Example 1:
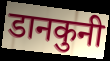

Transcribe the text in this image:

डानकुनी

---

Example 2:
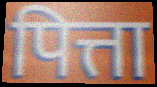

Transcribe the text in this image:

पित्ता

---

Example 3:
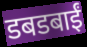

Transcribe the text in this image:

डबडबाईं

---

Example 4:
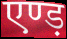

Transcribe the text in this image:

एण्ड़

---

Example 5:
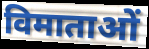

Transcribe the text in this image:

विमाताओं